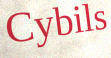
Cybils